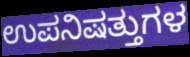
ಉಪನಿಷತ್ತುಗಳ